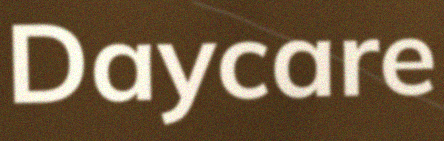
Daycare